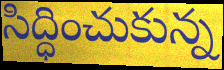
సిద్ధించుకున్న